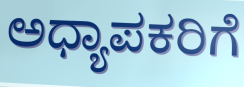
ಅಧ್ಯಾಪಕರಿಗೆ